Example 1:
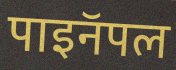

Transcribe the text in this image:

पाइनॅपल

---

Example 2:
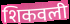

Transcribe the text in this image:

शिकवली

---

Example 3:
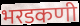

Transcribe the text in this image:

भरडकणी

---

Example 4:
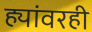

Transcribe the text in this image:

ह्यांवरही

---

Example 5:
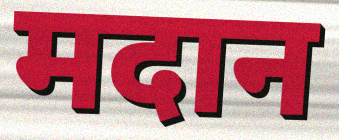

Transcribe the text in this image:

मदान